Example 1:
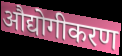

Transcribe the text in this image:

औद्योगीकरण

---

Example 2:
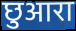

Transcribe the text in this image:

छुआरा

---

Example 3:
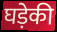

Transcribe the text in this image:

घड़ेकी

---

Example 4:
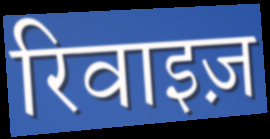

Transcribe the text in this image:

रिवाइज़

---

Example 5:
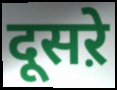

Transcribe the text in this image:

दूसऱे